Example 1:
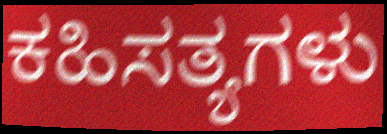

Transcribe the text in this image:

ಕಹಿಸತ್ಯಗಳು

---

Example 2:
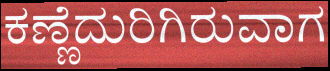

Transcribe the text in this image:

ಕಣ್ಣೆದುರಿಗಿರುವಾಗ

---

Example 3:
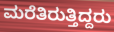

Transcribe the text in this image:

ಮರೆತಿರುತ್ತಿದ್ದರು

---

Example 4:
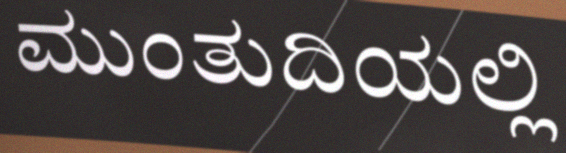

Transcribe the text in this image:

ಮುಂತುದಿಯಲ್ಲಿ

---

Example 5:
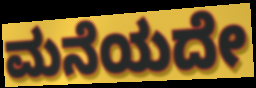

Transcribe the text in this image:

ಮನೆಯದೇ